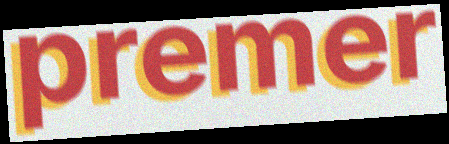
premer